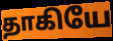
தாகியே